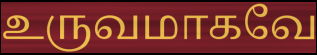
உருவமாகவே